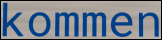
kommen